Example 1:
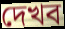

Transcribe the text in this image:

দেখব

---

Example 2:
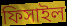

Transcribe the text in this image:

ফিসাইল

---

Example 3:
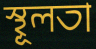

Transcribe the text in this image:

স্থূলতা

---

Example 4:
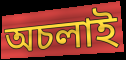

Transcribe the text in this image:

অচলাই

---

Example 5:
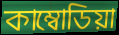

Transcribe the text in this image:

কাম্বোডিয়া